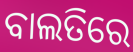
ବାଲତିରେ